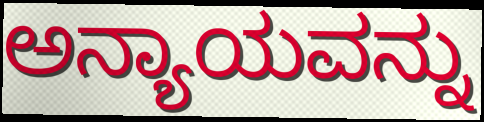
ಅನ್ಯಾಯವನ್ನು